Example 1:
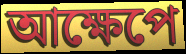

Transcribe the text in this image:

আক্ষেপে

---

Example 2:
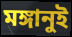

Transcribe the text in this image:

মঙ্গানুই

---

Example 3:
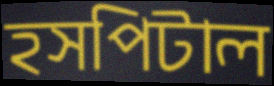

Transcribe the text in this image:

হসপিটাল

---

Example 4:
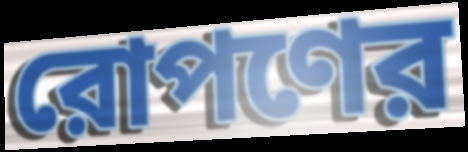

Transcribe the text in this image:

রোপণের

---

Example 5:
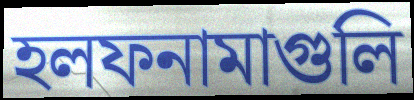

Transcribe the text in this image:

হলফনামাগুলি